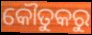
କୌତୁକରୁ